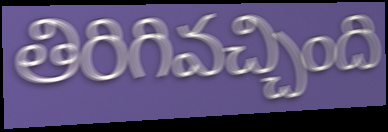
తిరిగివచ్చింది